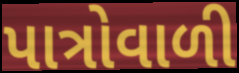
પાત્રોવાળી